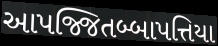
આપજ્જિતબ્બાપત્તિયા